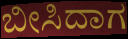
ಬೀಸಿದಾಗ